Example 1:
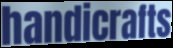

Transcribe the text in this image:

handicrafts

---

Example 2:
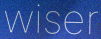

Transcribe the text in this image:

wiser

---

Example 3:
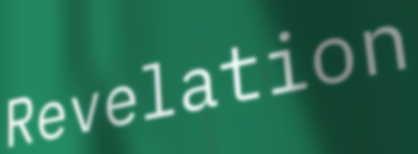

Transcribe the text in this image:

Revelation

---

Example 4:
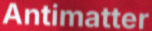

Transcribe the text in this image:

Antimatter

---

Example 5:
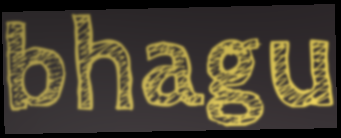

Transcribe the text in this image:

bhagu